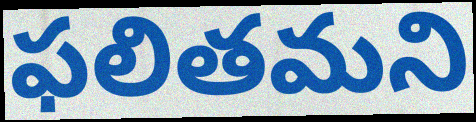
ఫలితమని